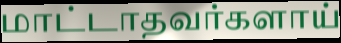
மாட்டாதவர்களாய்